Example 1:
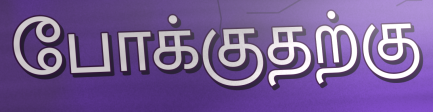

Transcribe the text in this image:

போக்குதற்கு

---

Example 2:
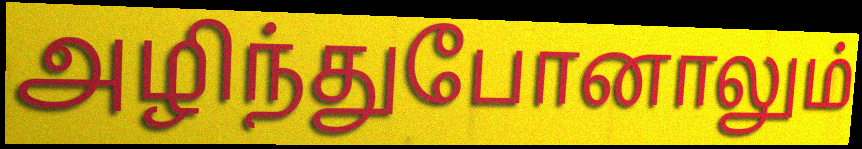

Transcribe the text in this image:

அழிந்துபோனாலும்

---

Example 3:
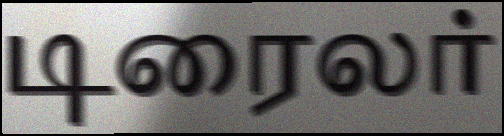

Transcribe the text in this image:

டிரைலர்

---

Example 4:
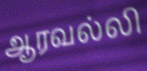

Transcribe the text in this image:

ஆரவல்லி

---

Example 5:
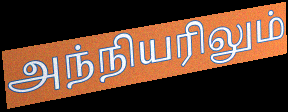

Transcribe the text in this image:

அந்நியரிலும்